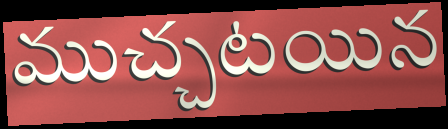
ముచ్చటయిన